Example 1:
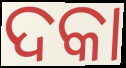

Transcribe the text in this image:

ଦକା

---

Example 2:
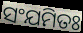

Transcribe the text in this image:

ସଂଯମିତଃ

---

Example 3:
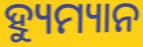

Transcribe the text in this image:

ହ୍ୟୁମ୍ୟାନ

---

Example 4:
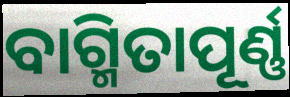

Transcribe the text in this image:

ବାଗ୍ମିତାପୂର୍ଣ୍ଣ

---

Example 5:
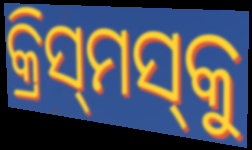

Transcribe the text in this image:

କ୍ରିସ୍‌ମସ୍‌କୁ